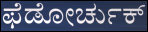
ಫೆಡೋರ್ಚುಕ್